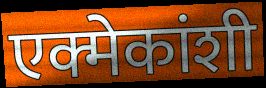
एक्मेकांशी